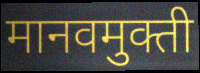
मानवमुक्ती